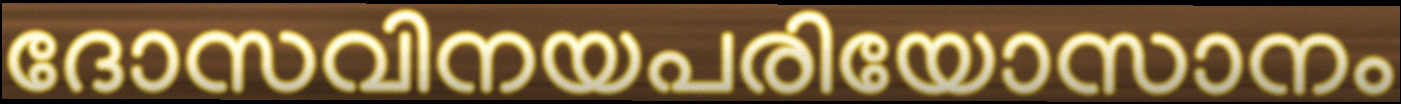
ദോസവിനയപരിയോസാനം